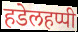
हडेलहप्पी